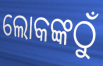
ଲୋକଙ୍କଠୁଁ